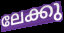
ലേക്കു